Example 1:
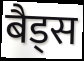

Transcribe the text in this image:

बैड्स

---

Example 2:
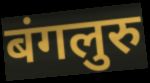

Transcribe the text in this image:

बंगलुरु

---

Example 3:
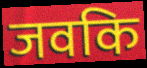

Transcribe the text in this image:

जवकि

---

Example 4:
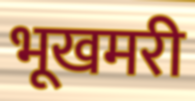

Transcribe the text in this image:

भूखमरी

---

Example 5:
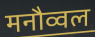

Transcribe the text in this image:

मनौव्वल